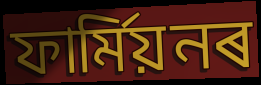
ফাৰ্মিয়নৰ